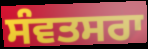
ਸੰਵਤਸਰਾ